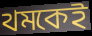
থমকেই